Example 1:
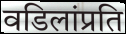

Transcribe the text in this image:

वडिलांप्रति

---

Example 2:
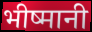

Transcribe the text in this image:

भीष्मानी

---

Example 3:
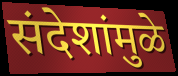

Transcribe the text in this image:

संदेशांमुळे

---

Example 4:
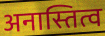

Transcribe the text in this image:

अनास्तित्व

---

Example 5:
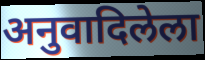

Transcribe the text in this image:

अनुवादिलेला